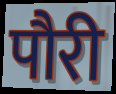
पौरी